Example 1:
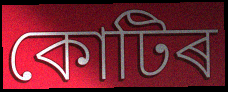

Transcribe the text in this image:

কোটিৰ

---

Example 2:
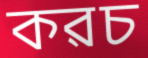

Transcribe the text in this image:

কৱচ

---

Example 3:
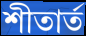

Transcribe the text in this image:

শীতাৰ্ত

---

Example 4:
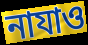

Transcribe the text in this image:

নাযাও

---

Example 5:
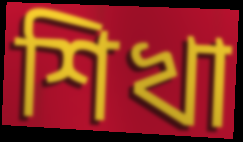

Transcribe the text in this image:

শিখা